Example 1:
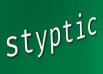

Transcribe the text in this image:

styptic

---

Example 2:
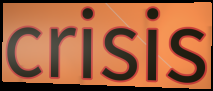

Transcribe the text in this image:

crisis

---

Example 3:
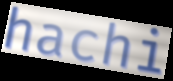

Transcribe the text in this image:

hachi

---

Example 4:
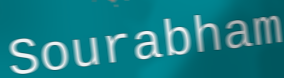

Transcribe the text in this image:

Sourabham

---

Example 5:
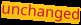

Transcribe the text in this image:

unchanged